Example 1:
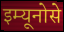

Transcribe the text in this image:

इम्यूनोसे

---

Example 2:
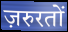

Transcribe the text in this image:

ज़रुरतों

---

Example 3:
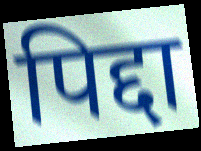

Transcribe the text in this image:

पिद्दा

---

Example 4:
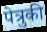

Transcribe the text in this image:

पेत्रुकी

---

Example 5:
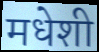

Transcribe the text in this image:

मधेशी